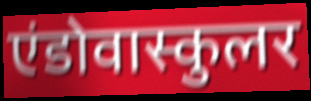
एंडोवास्कुलर